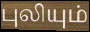
புலியும்